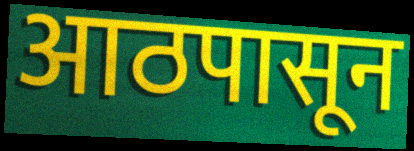
आठपासून